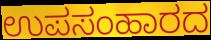
ಉಪಸಂಹಾರದ